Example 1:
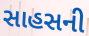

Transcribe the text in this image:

સાહસની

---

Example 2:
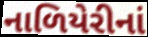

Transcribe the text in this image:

નાળિયેરીનાં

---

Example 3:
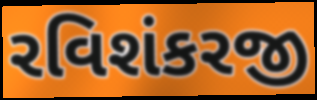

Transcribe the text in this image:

રવિશંકરજી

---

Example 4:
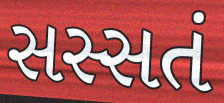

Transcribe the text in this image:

સસ્સતં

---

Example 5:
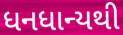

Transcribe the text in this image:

ધનધાન્યથી